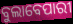
ବୁଲାବେପାରୀ